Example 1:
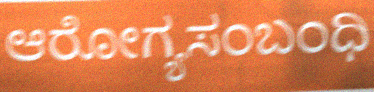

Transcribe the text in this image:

ಆರೋಗ್ಯಸಂಬಂಧಿ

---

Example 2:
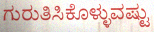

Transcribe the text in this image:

ಗುರುತಿಸಿಕೊಳ್ಳುವಷ್ಟು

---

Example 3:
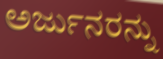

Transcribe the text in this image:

ಅರ್ಜುನರನ್ನು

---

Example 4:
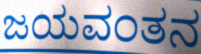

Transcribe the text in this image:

ಜಯವಂತನ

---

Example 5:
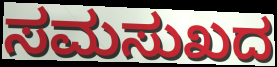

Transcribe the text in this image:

ಸಮಸುಖದ